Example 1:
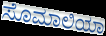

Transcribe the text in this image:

ಸೊಮಾಲಿಯಾ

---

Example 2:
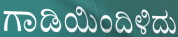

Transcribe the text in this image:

ಗಾಡಿಯಿಂದಿಳಿದು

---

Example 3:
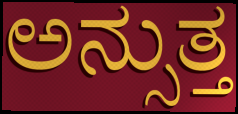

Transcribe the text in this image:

ಅನ್ಸುತ್ತ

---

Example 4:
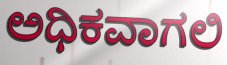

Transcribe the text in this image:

ಅಧಿಕವಾಗಲಿ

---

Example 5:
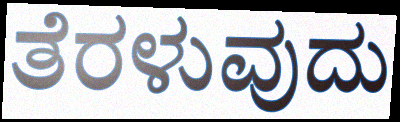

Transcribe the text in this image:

ತೆರಳುವುದು